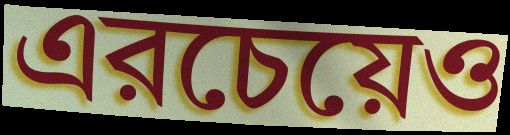
এরচেয়েও